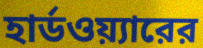
হার্ডওয়্যারের